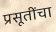
प्रसूतींचा